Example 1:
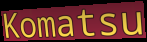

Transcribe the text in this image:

Komatsu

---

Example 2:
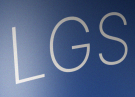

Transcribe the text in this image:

LGS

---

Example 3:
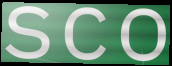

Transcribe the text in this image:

sco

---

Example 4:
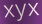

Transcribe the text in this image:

xyx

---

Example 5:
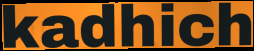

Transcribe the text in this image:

kadhich